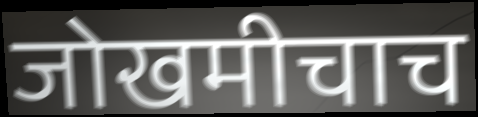
जोखमीचाच